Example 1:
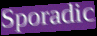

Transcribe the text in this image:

Sporadic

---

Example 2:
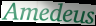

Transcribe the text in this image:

Amedeus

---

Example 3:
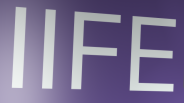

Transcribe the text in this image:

IIFE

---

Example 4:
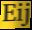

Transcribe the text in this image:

Eij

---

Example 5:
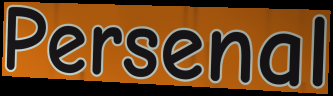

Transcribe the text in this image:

Persenal